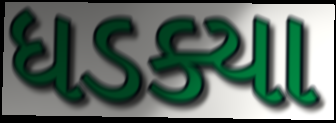
ધડક્યા